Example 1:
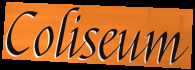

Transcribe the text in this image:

Coliseum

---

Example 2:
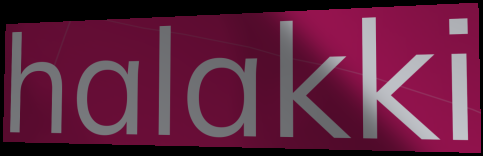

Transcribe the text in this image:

halakki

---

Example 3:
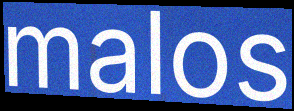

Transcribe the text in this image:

malos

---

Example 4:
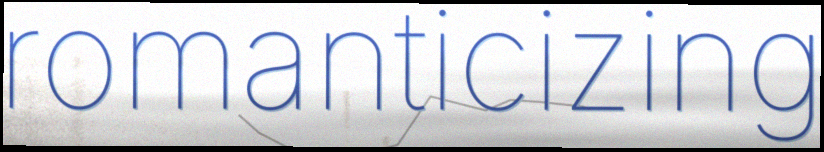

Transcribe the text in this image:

romanticizing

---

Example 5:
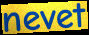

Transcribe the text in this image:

nevet